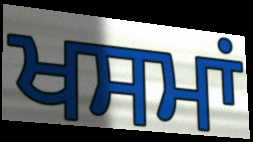
ਖਸਮਾਂ